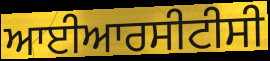
ਆਈਆਰਸੀਟੀਸੀ